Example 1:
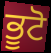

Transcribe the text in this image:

ਭੂਟੋ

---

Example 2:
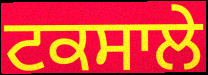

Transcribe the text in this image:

ਟਕਸਾਲੇ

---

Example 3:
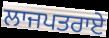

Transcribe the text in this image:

ਲਾਜਪਤਰਾਏ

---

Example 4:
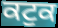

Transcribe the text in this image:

ਕਟੁਕ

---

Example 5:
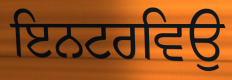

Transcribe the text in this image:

ਇਨਟਰਵਿਉ